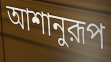
আশানুরূপ